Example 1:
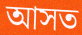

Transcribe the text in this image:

আসত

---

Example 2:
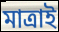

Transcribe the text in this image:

মাত্রাই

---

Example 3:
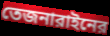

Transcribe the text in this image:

তেজনারাইনের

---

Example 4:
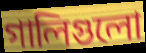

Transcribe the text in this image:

গালিগুলো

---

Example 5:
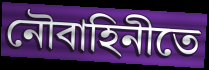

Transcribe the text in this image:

নৌবাহিনীতে